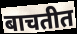
बाचतीत